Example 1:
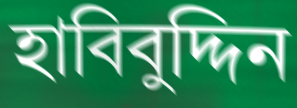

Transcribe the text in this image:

হাবিবুদ্দিন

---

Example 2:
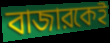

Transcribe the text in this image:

বাজারকেই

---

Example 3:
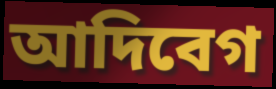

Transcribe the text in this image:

আদিবেগ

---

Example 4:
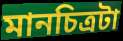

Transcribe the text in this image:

মানচিত্রটা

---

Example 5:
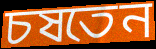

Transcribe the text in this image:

চষতেন